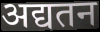
अद्यतन